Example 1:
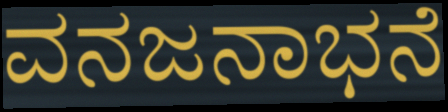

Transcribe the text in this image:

ವನಜನಾಭನೆ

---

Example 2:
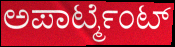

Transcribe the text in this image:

ಅಪಾರ್ಟ್ಮೆಂಟ್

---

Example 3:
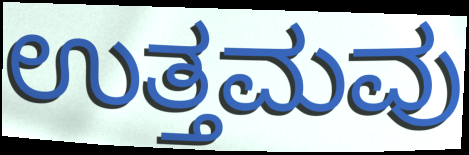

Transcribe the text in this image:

ಉತ್ತಮವು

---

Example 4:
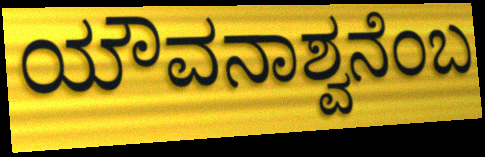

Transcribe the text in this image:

ಯೌವನಾಶ್ವನೆಂಬ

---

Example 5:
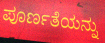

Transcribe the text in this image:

ಪೂರ್ಣತೆಯನ್ನು